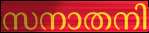
സനാതനി